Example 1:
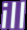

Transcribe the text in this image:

ill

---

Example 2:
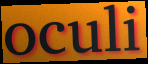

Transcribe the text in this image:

oculi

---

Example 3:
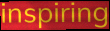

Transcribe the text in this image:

inspiring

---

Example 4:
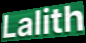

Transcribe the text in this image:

Lalith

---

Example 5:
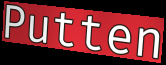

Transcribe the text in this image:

Putten